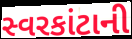
સ્વરકાંટાની